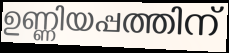
ഉണ്ണിയപ്പത്തിന്